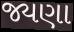
જ્યણા